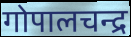
गोपालचन्द्र